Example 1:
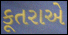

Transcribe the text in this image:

કૂતરાએ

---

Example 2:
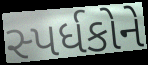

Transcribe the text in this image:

સ્પર્ધકોને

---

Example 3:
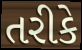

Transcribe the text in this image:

તરીકે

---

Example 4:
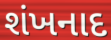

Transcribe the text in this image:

શંખનાદ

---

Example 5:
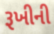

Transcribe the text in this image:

રૂખીની